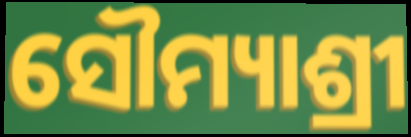
ସୌମ୍ୟାଶ୍ରୀ